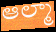
ఆల్మా